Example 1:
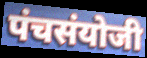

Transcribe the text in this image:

पंचसंयोजी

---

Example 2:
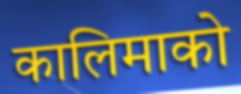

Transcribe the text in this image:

कालिमाको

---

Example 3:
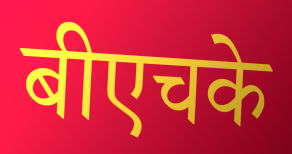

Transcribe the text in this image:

बीएचके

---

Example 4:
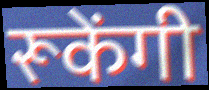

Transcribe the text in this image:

रूकेंगी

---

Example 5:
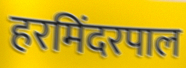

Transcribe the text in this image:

हरमिंदरपाल